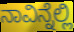
ನಾವಿನ್ನೆಲ್ಲಿ